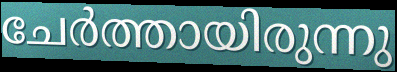
ചേർത്തായിരുന്നു